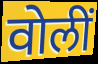
वोलीं